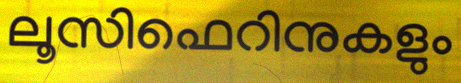
ലൂസിഫെറിനുകളും